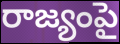
రాజ్యంపై